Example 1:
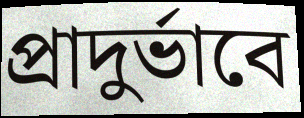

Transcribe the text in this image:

প্রাদুর্ভাবে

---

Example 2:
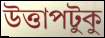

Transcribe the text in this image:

উত্তাপটুকু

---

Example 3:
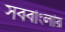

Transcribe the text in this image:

সববাংলায়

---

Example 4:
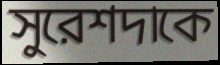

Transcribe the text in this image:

সুরেশদাকে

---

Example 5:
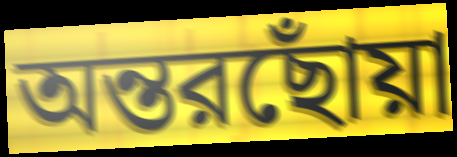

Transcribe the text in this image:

অন্তরছোঁয়া